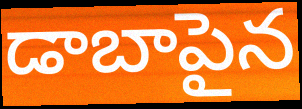
డాబాపైన